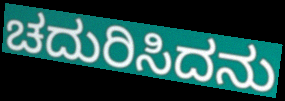
ಚದುರಿಸಿದನು